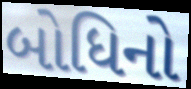
બોધિનો